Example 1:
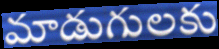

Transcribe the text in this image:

మాడుగులకు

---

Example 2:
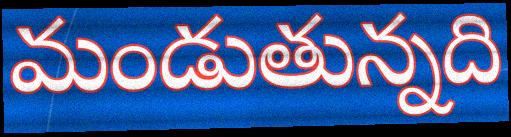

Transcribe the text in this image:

మండుతున్నది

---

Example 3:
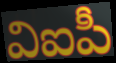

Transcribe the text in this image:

విఐపీ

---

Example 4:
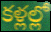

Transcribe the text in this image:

కళ్లల్లో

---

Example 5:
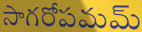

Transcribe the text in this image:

సాగరోపమమ్